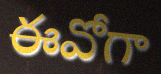
ఈవోగా